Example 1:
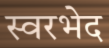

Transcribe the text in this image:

स्वरभेद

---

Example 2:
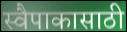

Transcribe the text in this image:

स्वैपाकासाठी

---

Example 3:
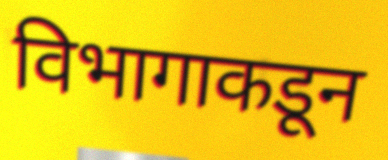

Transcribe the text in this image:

विभागाकडून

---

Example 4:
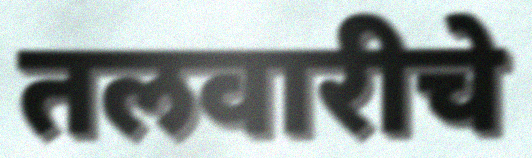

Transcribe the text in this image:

तलवारीचे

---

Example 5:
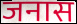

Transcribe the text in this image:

जनास